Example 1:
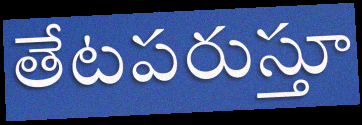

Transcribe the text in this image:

తేటపరుస్తూ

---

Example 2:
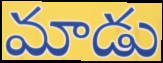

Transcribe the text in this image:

మాడు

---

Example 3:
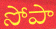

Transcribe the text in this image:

సోపా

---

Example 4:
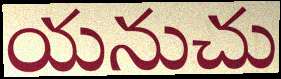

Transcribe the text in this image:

యనుచు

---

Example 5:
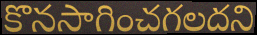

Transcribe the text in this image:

కొనసాగించగలదని